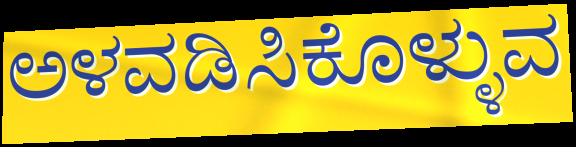
ಅಳವಡಿಸಿಕೊಳ್ಳುವ